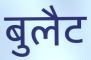
बुलैट